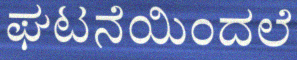
ಘಟನೆಯಿಂದಲೆ